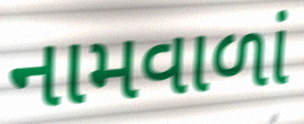
નામવાળાં